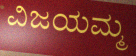
ವಿಜಯಮ್ಮ